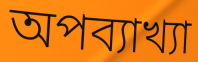
অপব্যাখ্যা